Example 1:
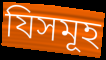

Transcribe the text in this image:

যিসমূহ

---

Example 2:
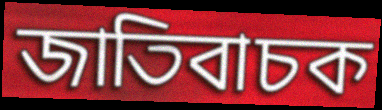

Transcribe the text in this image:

জাতিবাচক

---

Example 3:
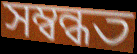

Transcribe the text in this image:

সম্বন্ধত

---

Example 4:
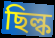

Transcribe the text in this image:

ছিল্ক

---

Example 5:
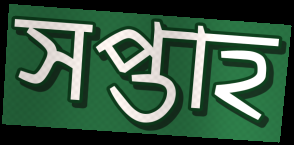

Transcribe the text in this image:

সপ্তাহ